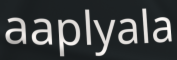
aaplyala